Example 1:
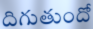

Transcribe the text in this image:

దిగుతుందో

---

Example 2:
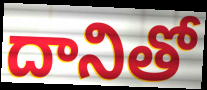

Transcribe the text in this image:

దానితో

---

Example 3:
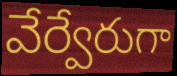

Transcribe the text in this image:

వేర్వేరుగా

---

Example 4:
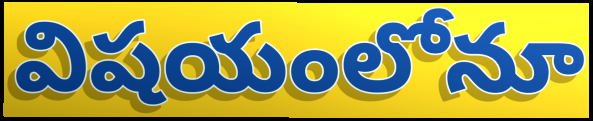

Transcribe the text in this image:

విషయంలోనూ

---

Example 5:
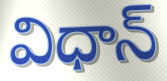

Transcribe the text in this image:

విధాన్